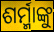
ଶର୍ମ୍ମାଙ୍କୁ